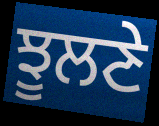
ਝੂਲਣੇ